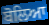
ਬੋਲਿਆ